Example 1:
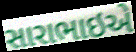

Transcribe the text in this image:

સારાભાઇએ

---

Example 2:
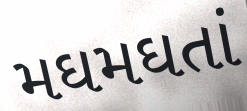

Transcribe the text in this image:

મઘમઘતાં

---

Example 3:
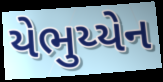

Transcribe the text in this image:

યેભુય્યેન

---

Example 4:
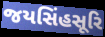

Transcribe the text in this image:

જયસિંહસૂરિ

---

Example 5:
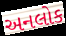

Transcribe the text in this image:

અનલોક